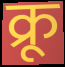
क्रू